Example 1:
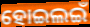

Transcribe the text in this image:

ହୋଇଲଇଁ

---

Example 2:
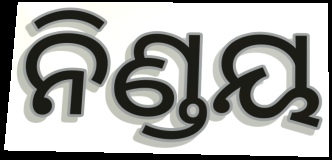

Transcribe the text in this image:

ନିଣ୍ଡୟ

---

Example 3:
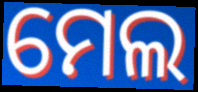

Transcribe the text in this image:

ମେଲ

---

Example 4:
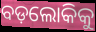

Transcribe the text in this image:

ବଡ଼ଲୋକିକୁ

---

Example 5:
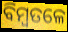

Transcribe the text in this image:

ବିମ୍ବତଳେ